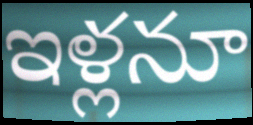
ఇళ్లనూ